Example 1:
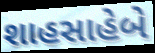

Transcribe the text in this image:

શાહસાહેબે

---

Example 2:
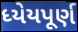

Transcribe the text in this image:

ધ્યેયપૂર્ણ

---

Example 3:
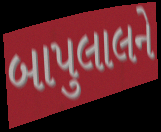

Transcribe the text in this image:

બાપુલાલને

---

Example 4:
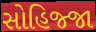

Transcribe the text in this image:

સોહિજ્જા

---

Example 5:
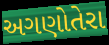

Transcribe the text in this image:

અગણોતેરા